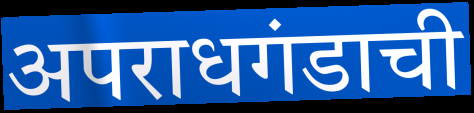
अपराधगंडाची